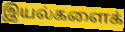
இயல்களைக்